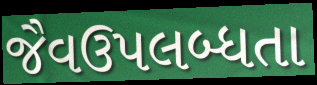
જૈવઉપલબ્ધતા